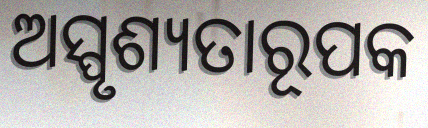
ଅସ୍ପୃଶ୍ୟତାରୂପକ